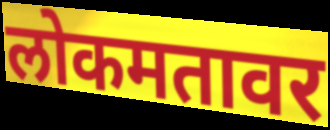
लोकमतावर